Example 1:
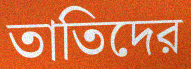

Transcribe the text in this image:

তাতিদের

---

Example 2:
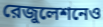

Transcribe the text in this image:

রেজুলেশনেও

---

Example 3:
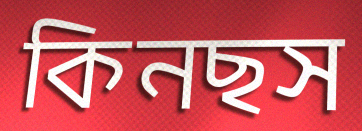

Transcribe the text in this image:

কিনছস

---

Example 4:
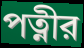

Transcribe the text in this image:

পত্নীর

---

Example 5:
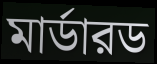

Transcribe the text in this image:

মার্ডারড